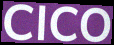
CICO